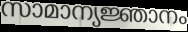
സാമാന്യജ്ഞാനം